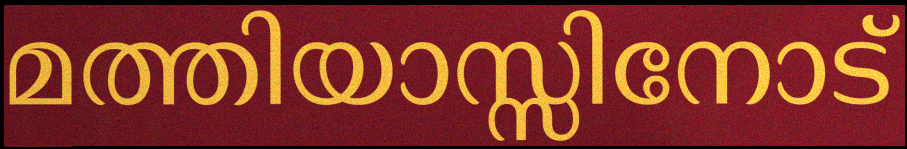
മത്തിയാസ്സിനോട്